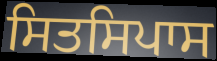
ਸਿਤਸਿਪਾਸ